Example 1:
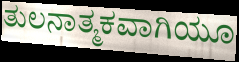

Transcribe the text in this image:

ತುಲನಾತ್ಮಕವಾಗಿಯೂ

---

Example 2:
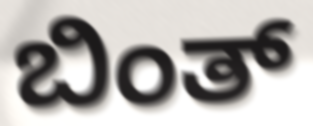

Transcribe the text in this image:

ಬಿಂತ್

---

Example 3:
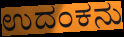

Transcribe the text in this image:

ಉದಂಕನು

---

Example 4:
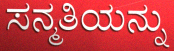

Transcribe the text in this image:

ಸನ್ಮತಿಯನ್ನು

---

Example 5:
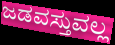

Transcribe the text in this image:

ಜಡವಸ್ತುವಲ್ಲ